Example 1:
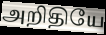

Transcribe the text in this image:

அறிதியே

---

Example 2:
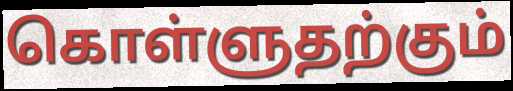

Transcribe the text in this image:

கொள்ளுதற்கும்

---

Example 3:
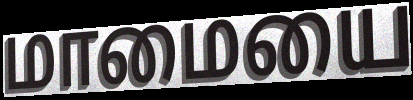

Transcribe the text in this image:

மாமையை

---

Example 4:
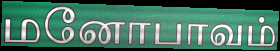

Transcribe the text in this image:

மனோபாவம்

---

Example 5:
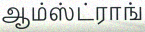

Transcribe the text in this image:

ஆம்ஸ்ட்ராங்